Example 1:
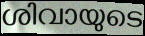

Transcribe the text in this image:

ശിവായുടെ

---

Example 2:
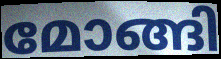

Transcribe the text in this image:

മോങ്ങി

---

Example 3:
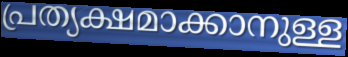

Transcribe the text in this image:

പ്രത്യക്ഷമാക്കാനുള്ള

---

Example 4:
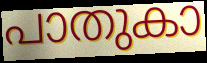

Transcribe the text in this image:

പാതുകാ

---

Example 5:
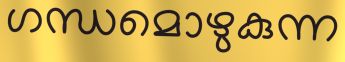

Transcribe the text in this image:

ഗന്ധമൊഴുകുന്ന